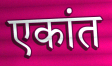
एकांत